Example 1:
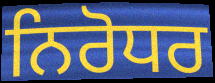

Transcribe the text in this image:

ਨਿਰੋਧਰ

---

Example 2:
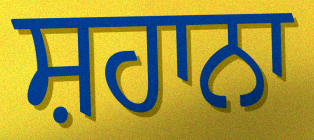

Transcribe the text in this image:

ਸ਼ਹਾਨਾ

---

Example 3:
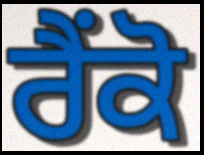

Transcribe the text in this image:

ਰੈਂਕੋ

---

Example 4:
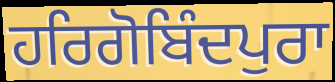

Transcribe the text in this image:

ਹਰਿਗੋਬਿੰਦਪੁਰਾ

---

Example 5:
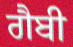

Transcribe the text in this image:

ਗੈਬੀ